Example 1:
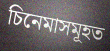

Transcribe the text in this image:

চিনেমাসমূহত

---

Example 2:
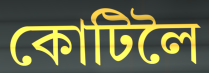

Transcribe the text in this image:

কোটিলৈ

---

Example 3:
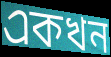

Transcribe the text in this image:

একখন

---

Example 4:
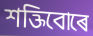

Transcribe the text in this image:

শক্তিবোৰে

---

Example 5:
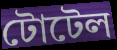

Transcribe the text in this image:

টোটেল